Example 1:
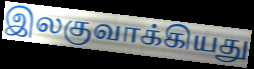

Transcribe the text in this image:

இலகுவாக்கியது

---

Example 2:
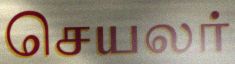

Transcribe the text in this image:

செயலர்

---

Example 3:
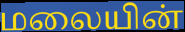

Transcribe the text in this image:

மலையின்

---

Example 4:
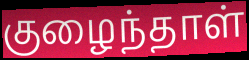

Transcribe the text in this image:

குழைந்தாள்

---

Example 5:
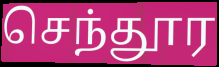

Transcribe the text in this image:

செந்தூர